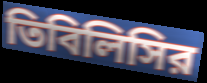
তিবিলিসির